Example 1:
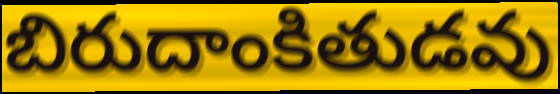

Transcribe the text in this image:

బిరుదాంకితుడవు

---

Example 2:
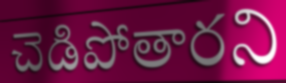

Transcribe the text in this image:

చెడిపోతారని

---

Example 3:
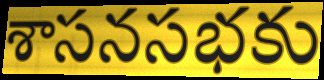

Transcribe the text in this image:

శాసనసభకు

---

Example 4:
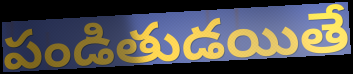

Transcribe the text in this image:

పండితుడయితే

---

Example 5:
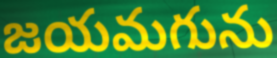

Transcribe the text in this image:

జయమగును